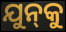
ଯୁନ୍‍କୁ